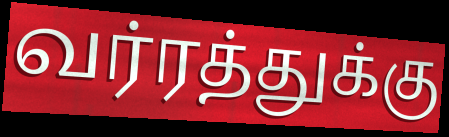
வர்ரத்துக்கு